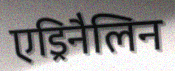
एड्रिनैलिन